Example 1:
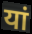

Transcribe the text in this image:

यां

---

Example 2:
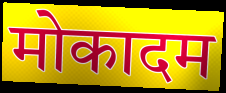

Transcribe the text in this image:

मोकादम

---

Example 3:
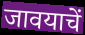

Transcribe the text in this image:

जावयाचें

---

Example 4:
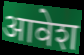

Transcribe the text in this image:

आवेश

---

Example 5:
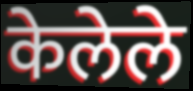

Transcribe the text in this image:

केलेले